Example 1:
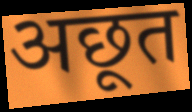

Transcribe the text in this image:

अछूत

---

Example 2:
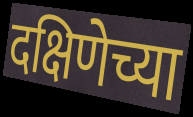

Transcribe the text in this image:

दक्षिणेच्या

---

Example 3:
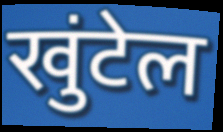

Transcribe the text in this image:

खुंटेल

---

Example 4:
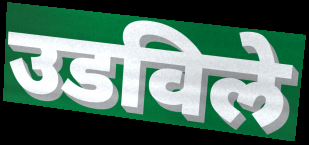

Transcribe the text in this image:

उडविले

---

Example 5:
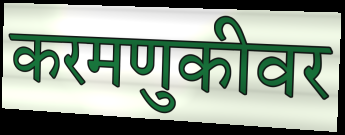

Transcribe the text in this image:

करमणुकीवर